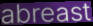
abreast